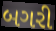
બગરી